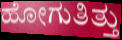
ಹೋಗುತಿತ್ತು